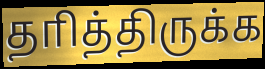
தரித்திருக்க